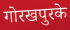
गोरखपुरके